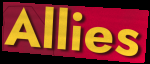
Allies